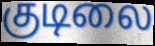
குடிலை